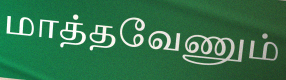
மாத்தவேணும்